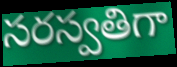
సరస్వతిగా